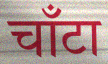
चाँटा